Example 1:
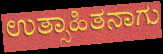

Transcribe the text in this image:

ಉತ್ಸಾಹಿತನಾಗು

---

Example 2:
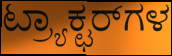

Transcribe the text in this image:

ಟ್ರ್ಯಾಕ್ಟರ್‌ಗಳ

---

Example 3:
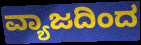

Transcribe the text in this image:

ವ್ಯಾಜದಿಂದ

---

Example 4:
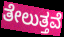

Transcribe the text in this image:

ತೇಲುತ್ತವೆ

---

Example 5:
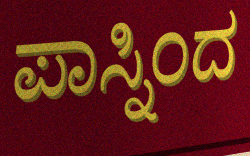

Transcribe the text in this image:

ಪಾಸ್ನಿಂದ